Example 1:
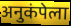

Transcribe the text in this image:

अनुकंपेला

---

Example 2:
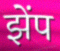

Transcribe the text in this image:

झेंप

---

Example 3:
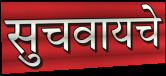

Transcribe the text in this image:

सुचवायचे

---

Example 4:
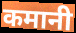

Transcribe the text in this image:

कमानी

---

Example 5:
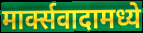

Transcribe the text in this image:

मार्क्सवादामध्ये